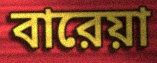
বারেয়া